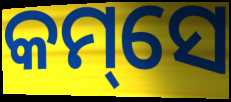
କମ୍‌ସେ